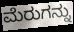
ಮೆರುಗನ್ನು